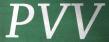
PVV